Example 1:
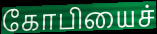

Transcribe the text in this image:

கோபியைச்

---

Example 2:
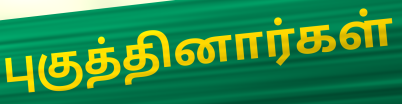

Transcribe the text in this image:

புகுத்தினார்கள்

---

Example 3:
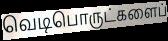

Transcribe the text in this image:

வெடிபொருட்களைப்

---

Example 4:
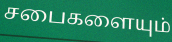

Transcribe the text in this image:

சபைகளையும்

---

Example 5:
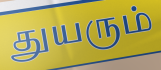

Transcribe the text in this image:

துயரும்